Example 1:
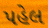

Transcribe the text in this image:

પહેલ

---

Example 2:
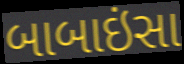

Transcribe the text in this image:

બાબાઇંસા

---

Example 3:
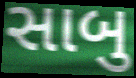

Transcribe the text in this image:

સાબુ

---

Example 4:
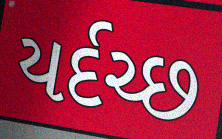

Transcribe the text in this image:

યર્દચ્છ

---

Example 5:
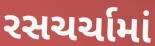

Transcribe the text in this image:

રસચર્ચામાં